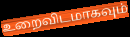
உறைவிடமாகவும்